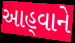
આહ્‌વાને